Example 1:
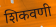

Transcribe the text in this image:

शिकवणी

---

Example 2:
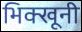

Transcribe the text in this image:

भिक्खूनी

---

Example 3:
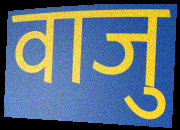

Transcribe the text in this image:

वाजु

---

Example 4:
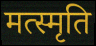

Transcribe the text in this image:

मत्स्मृति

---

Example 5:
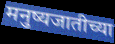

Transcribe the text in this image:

मनुष्यजातीच्या